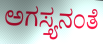
ಅಗಸ್ತ್ಯನಂತೆ